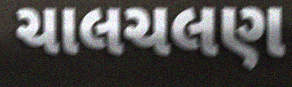
ચાલચલણ